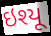
ઇશ્યૂ